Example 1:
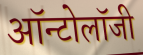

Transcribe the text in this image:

ऑन्टोलॉजी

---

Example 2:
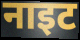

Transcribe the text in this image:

नाइट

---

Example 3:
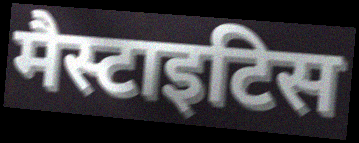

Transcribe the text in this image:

मैस्टाइटिस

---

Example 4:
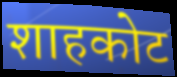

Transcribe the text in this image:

शाहकोट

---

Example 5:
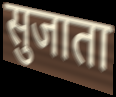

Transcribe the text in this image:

सुजाता